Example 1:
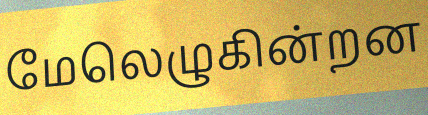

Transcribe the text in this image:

மேலெழுகின்றன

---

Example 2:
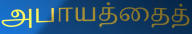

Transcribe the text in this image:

அபாயத்தைத்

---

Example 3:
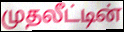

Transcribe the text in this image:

முதலீட்டின்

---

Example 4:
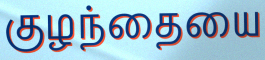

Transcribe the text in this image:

குழந்தையை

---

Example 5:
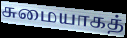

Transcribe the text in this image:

சுமையாகத்